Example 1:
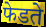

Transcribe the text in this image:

फेडते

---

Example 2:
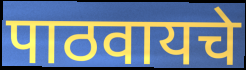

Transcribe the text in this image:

पाठवायचे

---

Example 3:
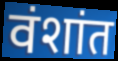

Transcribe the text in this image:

वंशांत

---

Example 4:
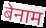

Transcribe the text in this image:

बेनाम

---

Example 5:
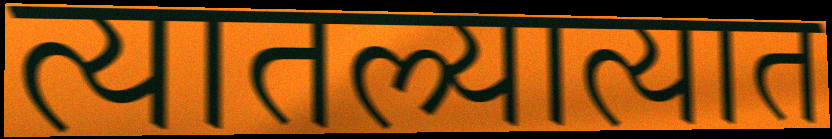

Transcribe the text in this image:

त्यातल्यात्यात